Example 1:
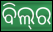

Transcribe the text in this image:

ବିଲ୍‌ର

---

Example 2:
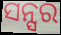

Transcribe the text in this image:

ସନ୍ସର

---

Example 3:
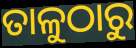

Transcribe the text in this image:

ତାଳୁଠାରୁ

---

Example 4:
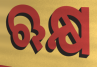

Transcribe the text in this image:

ଋକ୍ଷ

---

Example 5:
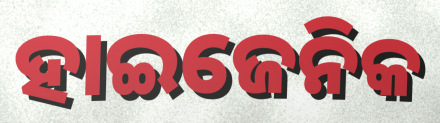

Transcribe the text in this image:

ହାଇଜେନିକ